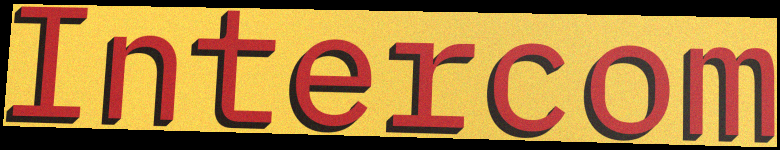
Intercom